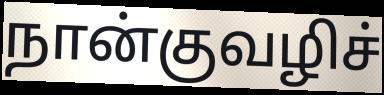
நான்குவழிச்